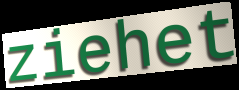
ziehet